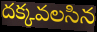
దక్కవలసిన